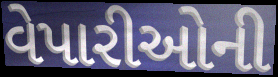
વેપારીઓની